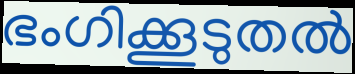
ഭംഗിക്കൂടുതൽ